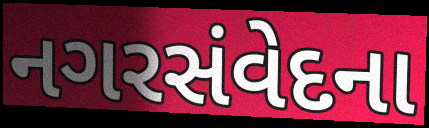
નગરસંવેદના